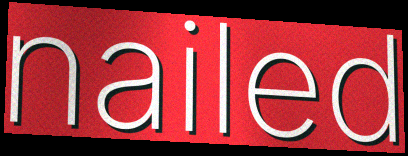
nailed